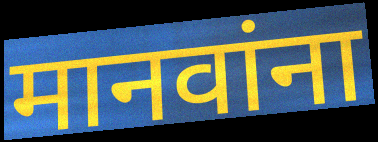
मानवांना